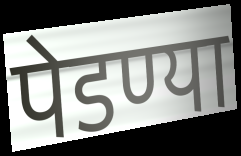
पेडण्या